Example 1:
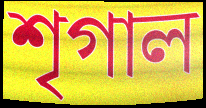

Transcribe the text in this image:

শৃগাল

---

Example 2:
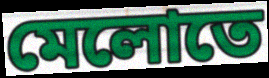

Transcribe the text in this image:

মেলোতে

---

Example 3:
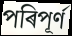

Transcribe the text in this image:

পৰিপূৰ্ণ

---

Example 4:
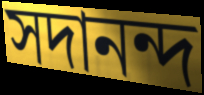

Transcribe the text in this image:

সদানন্দ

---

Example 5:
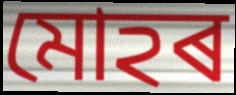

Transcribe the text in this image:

মোহৰ